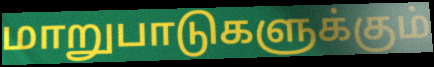
மாறுபாடுகளுக்கும்